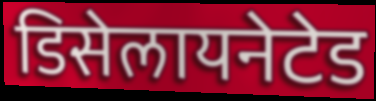
डिसेलायनेटेड